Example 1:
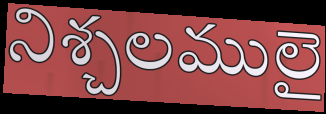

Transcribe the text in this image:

నిశ్చలములై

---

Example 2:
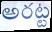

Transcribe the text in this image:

అరట్ట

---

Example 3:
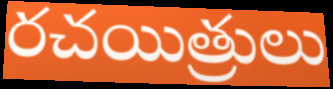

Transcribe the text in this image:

రచయిత్రులు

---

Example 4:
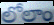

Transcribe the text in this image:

లోలాం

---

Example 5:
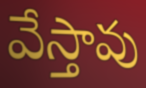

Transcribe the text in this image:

వేస్తావు